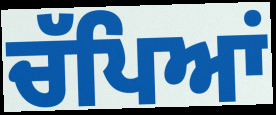
ਚੱਪਿਆਂ